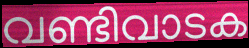
വണ്ടിവാടക